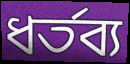
ধর্তব্য